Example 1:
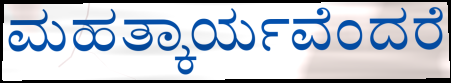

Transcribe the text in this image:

ಮಹತ್ಕಾರ್ಯವೆಂದರೆ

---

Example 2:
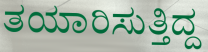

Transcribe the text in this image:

ತಯಾರಿಸುತ್ತಿದ್ದ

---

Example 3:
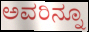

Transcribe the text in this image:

ಅವರಿನ್ನೂ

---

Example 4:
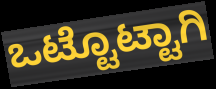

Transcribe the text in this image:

ಒಟ್ಟೊಟ್ಟಾಗಿ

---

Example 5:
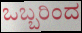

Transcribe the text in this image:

ಒಬ್ಬರಿಂದ